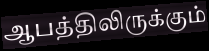
ஆபத்திலிருக்கும்